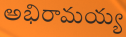
అభిరామయ్య